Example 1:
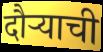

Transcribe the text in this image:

दौर्‍याची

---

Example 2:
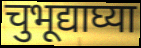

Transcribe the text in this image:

चुभूद्याघ्या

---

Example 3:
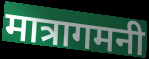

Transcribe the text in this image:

मात्रागमनी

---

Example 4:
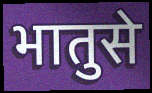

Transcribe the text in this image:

भातुसे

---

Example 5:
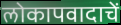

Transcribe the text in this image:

लोकापवादाचें